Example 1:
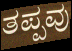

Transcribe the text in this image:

ತಪ್ಪವು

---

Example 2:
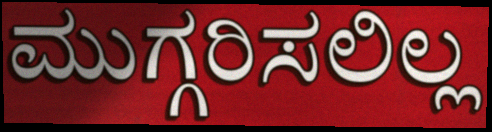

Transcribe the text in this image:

ಮುಗ್ಗರಿಸಲಿಲ್ಲ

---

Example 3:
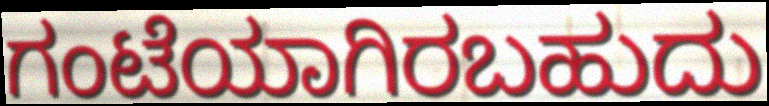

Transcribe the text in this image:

ಗಂಟೆಯಾಗಿರಬಹುದು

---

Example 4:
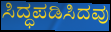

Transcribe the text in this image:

ಸಿದ್ಧಪಡಿಸಿದವು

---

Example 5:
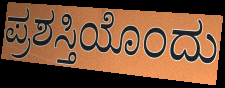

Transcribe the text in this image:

ಪ್ರಶಸ್ತಿಯೊಂದು